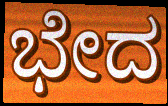
ಭೇದ